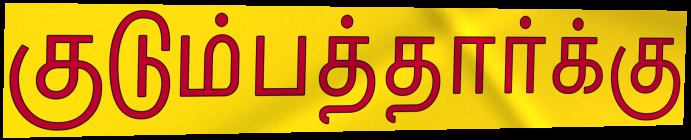
குடும்பத்தார்க்கு